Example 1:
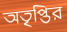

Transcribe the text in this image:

অতৃপ্তির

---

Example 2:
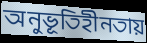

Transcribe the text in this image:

অনুভূতিহীনতায়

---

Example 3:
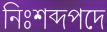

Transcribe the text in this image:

নিঃশব্দপদে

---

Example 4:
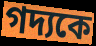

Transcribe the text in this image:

গদ্যকে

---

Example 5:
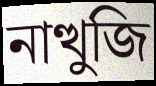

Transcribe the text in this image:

নাত্থুজি